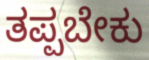
ತಪ್ಪಬೇಕು